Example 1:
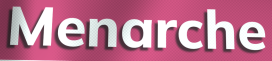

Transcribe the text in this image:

Menarche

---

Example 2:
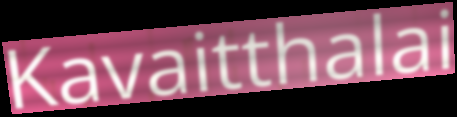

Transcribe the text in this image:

Kavaitthalai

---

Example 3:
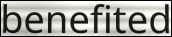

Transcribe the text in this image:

benefited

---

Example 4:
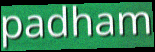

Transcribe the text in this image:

padham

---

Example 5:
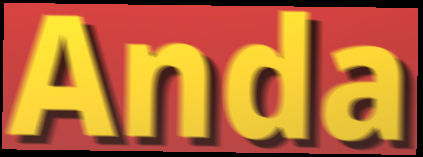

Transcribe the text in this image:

Anda